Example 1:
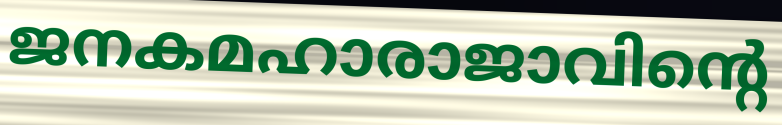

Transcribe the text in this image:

ജനകമഹാരാജാവിന്റെ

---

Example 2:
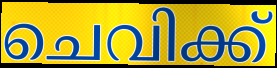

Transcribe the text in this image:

ചെവിക്ക്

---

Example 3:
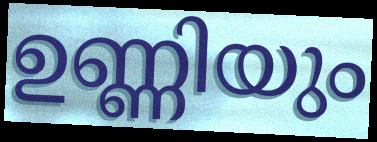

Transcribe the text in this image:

ഉണ്ണിയും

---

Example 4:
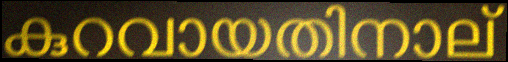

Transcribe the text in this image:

കുറവായതിനാല്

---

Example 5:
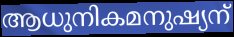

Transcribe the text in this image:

ആധുനികമനുഷ്യന്